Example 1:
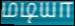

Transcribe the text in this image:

மடியா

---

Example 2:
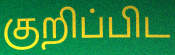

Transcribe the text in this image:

குறிப்பிட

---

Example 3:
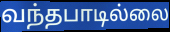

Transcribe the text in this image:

வந்தபாடில்லை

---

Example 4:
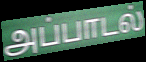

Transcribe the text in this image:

அப்பாடல்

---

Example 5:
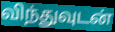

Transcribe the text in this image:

விந்துவுடன்